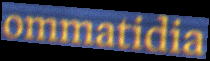
ommatidia